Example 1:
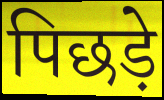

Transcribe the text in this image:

पिछड़े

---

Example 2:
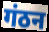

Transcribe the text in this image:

गंठन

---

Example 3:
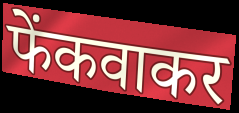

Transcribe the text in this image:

फेंकवाकर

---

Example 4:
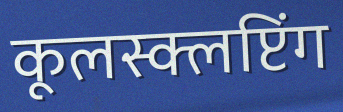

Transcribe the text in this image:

कूलस्क्लप्टिंग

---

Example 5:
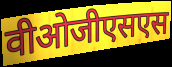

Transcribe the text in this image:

वीओजीएसएस